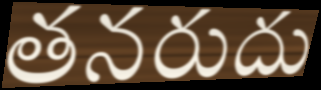
తనరుదు